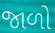
જાળો